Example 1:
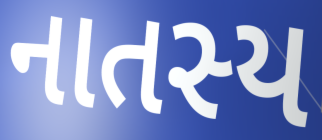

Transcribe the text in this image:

નાતસ્ય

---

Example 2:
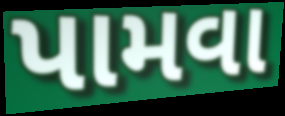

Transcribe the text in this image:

પામવા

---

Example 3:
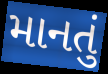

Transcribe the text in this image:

માનતું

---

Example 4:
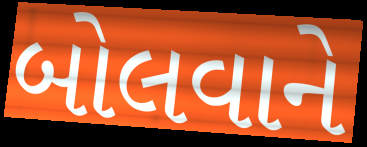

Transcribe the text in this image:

બોલવાને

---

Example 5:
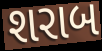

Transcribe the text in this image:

શરાબ